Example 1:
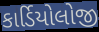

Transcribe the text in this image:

કાર્ડિયોલોજી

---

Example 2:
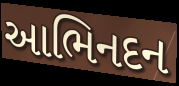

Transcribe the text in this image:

આભિનદન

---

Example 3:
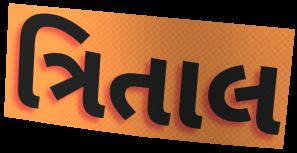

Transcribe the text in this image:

ત્રિતાલ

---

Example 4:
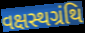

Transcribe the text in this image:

વક્ષસ્થગ્રંથિ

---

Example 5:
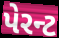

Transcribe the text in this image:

પેરન્ટ